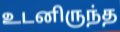
உடனிருந்த